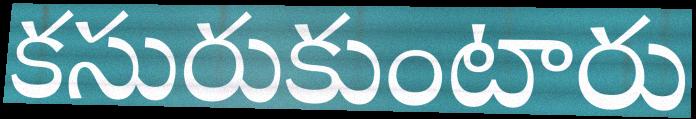
కసురుకుంటారు